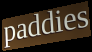
paddies